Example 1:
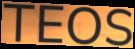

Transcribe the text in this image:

TEOS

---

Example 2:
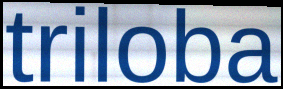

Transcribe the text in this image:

triloba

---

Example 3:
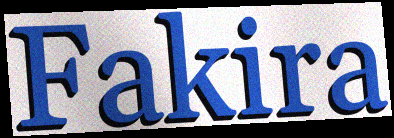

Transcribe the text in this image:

Fakira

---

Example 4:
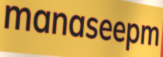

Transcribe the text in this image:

manaseepm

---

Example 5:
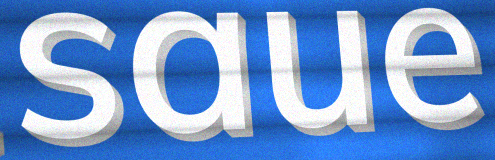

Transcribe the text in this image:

saue